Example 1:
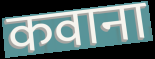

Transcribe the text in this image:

कवाना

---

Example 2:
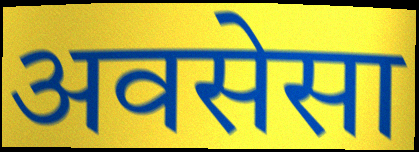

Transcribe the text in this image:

अवसेसा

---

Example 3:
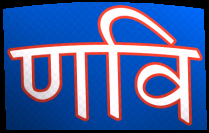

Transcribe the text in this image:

णवि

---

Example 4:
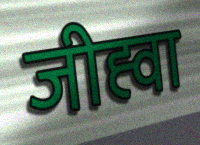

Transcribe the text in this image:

जीह्वा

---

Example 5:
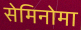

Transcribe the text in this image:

सेमिनोमा